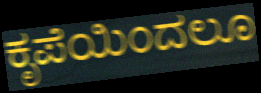
ಕೃಪೆಯಿಂದಲೂ